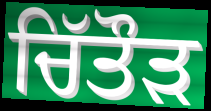
ਚਿੱਤੌੜ